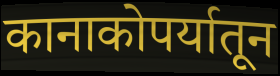
कानाकोपर्यातून